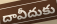
దావీదుకు